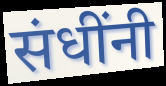
संधींनी